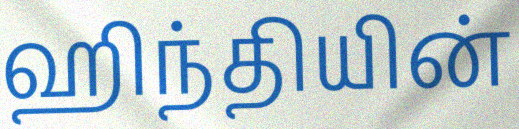
ஹிந்தியின்